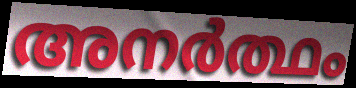
അനർത്ഥം